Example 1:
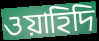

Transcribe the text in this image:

ওয়াহিদি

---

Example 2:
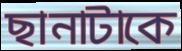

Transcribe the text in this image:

ছানাটাকে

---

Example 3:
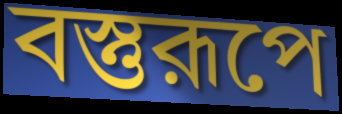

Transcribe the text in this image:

বস্তুরূপে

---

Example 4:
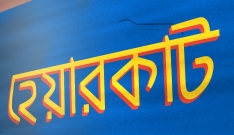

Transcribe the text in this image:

হেয়ারকাট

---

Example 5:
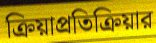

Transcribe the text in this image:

ক্রিয়াপ্রতিক্রিয়ার